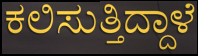
ಕಲಿಸುತ್ತಿದ್ದಾಳೆ